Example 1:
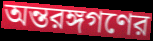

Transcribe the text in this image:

অন্তরঙ্গগণের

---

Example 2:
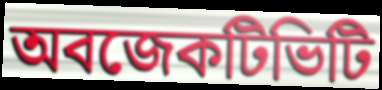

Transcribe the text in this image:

অবজেকটিভিটি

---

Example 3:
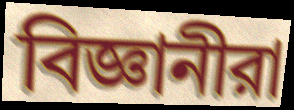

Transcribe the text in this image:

বিজ্ঞানীরা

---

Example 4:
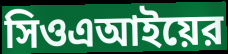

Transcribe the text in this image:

সিওএআইয়ের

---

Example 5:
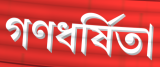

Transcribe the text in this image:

গণধর্ষিতা